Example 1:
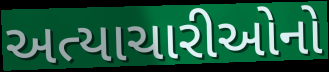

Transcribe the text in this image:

અત્યાચારીઓનો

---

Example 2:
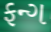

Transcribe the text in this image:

ફન્ગ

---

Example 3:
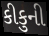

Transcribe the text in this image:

કીકુની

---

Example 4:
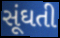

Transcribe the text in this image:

સૂંઘતી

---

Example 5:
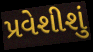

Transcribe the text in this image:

પ્રવેશીશું